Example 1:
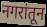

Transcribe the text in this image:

नगरांतून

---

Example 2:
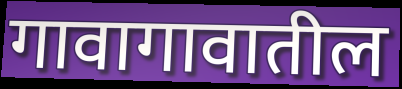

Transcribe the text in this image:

गावागावातील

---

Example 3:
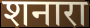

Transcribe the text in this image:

शनारा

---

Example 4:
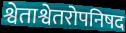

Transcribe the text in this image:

श्वेताश्वेतरोपनिषद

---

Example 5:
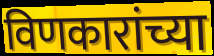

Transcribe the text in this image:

विणकारांच्या